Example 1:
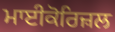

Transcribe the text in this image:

ਮਾਈਕੋਰਿਜ਼ਲ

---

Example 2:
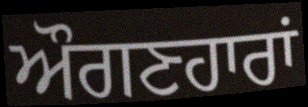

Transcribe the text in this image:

ਔਗਣਹਾਰਾਂ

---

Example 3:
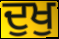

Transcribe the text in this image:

ਦੁਖੁ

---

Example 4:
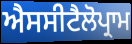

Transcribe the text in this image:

ਐਸਸੀਟੈਲੋਪ੍ਰਾਮ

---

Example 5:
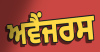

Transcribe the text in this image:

ਅਵੈਂਜਰਸ